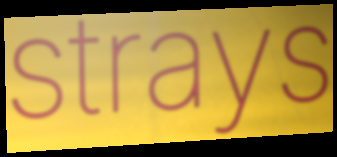
strays